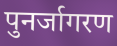
पुनर्जागरण